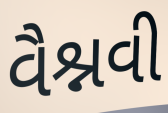
વૈશ્નવી